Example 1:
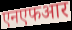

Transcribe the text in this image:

एनएफआर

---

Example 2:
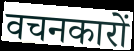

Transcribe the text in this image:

वचनकारों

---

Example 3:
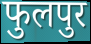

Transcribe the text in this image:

फुलपुर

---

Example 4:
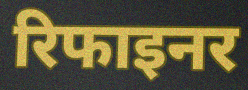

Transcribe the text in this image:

रिफाइनर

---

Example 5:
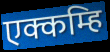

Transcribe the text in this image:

एक्कम्हि